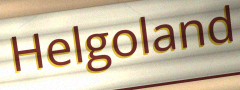
Helgoland